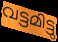
വട്ടമിട്ടു